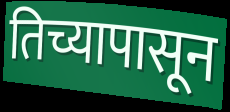
तिच्यापासून